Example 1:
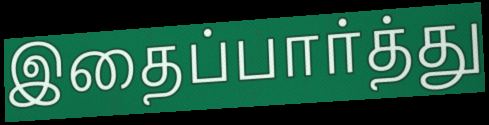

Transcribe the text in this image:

இதைப்பார்த்து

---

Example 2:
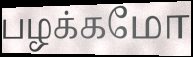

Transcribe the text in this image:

பழக்கமோ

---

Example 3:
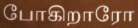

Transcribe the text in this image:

போகிறாரோ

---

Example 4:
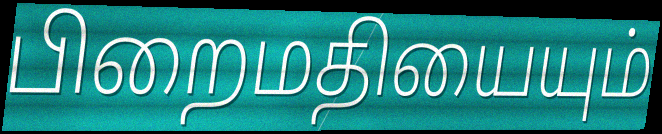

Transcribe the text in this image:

பிறைமதியையும்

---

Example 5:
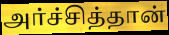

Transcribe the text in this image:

அர்ச்சித்தான்